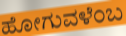
ಹೋಗುವಳೆಂಬ